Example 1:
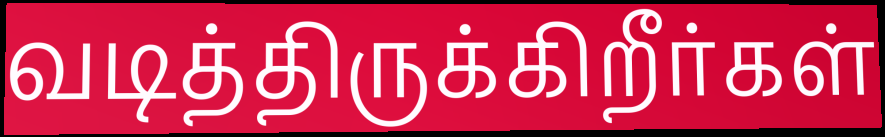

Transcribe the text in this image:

வடித்திருக்கிறீர்கள்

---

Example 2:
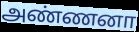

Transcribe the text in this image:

அண்ணனா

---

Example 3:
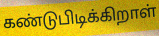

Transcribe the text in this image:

கண்டுபிடிக்கிறாள்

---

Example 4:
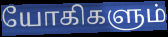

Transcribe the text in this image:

யோகிகளும்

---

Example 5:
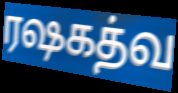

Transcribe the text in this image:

ரஷகத்வ